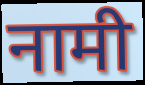
नामी